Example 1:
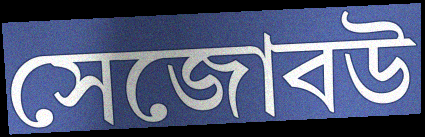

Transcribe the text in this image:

সেজোবউ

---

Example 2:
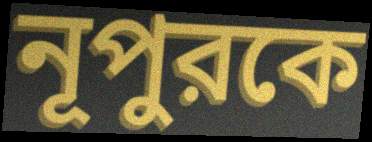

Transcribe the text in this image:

নূপুরকে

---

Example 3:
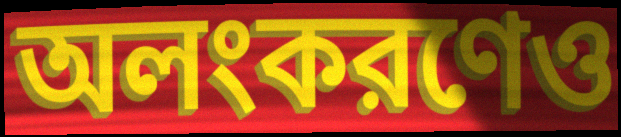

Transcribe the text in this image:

অলংকরণেও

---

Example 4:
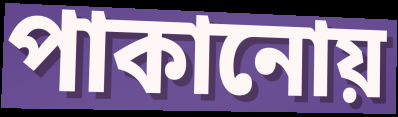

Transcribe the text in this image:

পাকানোয়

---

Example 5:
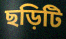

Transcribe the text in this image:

ছড়িটি